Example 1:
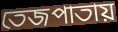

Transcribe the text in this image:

তেজপাতায়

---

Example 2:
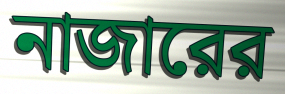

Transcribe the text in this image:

নাজারের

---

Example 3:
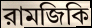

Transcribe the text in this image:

রামজিকি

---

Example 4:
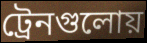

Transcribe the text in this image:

ট্রেনগুলোয়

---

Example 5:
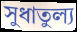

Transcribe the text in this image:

সুধাতুল্য